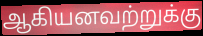
ஆகியனவற்றுக்கு